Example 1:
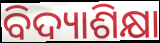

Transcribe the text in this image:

ବିଦ୍ୟାଶିକ୍ଷା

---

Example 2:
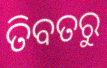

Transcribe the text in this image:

ତିବତରୁ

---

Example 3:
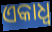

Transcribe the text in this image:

ଏକାଧ୍ଵ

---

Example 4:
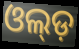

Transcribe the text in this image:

ଓଲ୍ଡ଼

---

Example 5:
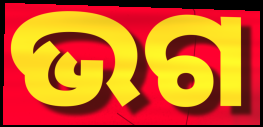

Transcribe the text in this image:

ଭଗ